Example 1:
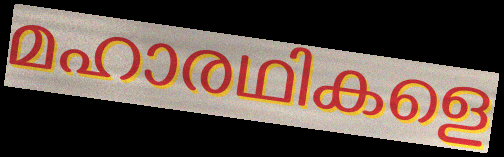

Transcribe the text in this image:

മഹാരഥികളെ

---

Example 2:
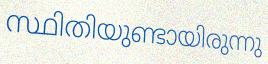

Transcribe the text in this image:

സ്ഥിതിയുണ്ടായിരുന്നു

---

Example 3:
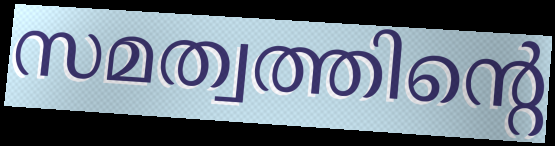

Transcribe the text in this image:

സമത്വത്തിന്റെ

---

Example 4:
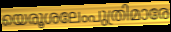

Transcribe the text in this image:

യെരൂശലേംപുത്രിമാരേ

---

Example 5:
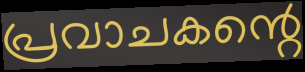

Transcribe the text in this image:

പ്രവാചകന്റെ